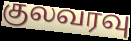
குலவரவு